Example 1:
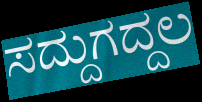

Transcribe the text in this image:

ಸದ್ದುಗದ್ದಲ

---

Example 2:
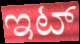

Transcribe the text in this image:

ಇಟ್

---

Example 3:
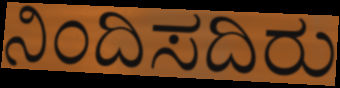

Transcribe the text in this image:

ನಿಂದಿಸದಿರು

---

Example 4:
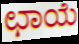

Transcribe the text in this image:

ಛಾಯೆ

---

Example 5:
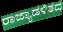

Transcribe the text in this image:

ರಾಜ್ಯಾಡಳಿತದ